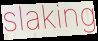
slaking